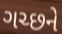
ગચ્છને